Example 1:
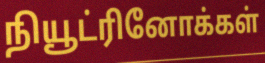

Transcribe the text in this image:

நியூட்ரினோக்கள்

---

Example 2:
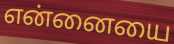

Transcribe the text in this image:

என்னையை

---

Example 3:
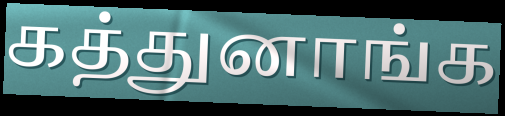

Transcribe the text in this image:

கத்துனாங்க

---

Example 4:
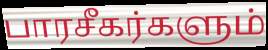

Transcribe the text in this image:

பாரசீகர்களும்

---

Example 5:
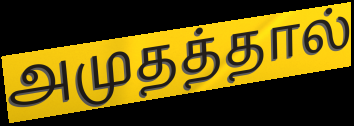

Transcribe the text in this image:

அமுதத்தால்